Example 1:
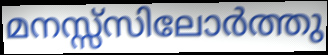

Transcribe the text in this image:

മനസ്സ്സിലോർത്തു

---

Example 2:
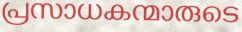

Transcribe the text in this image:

പ്രസാധകന്മാരുടെ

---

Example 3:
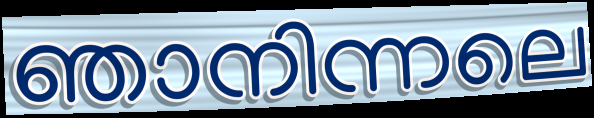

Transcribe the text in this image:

ഞാനിന്നലെ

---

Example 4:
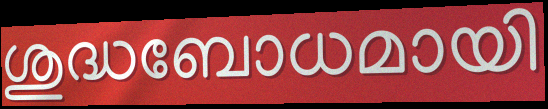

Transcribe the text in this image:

ശുദ്ധബോധമായി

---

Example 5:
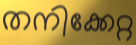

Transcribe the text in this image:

തനിക്കേറ്റ